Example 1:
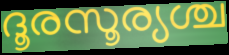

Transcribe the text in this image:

ദൂരസൂര്യശ്ച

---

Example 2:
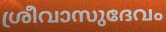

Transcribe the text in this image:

ശ്രീവാസുദേവം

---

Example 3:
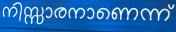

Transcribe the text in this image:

നിസ്സാരനാണെന്ന്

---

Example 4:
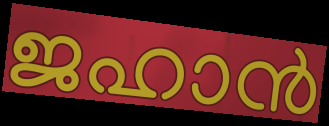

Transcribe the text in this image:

ജഹാൻ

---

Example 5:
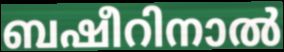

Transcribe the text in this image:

ബഷീറിനാൽ